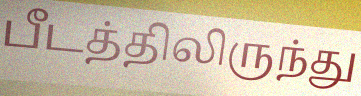
பீடத்திலிருந்து